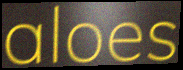
aloes